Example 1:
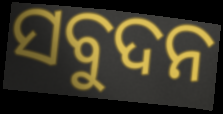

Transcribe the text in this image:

ସବୁଦନ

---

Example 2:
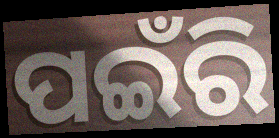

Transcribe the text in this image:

ପଇଁରି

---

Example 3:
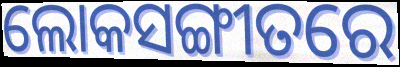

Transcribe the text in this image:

ଲୋକସଙ୍ଗୀତରେ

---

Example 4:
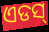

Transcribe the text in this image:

ଏଡସ୍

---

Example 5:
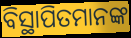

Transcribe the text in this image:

ବିସ୍ଥାପିତମାନଙ୍କ